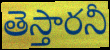
తెస్తారనీ